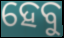
ହେବୁ